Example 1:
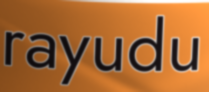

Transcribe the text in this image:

rayudu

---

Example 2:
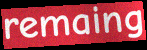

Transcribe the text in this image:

remaing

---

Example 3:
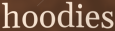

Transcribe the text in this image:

hoodies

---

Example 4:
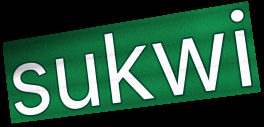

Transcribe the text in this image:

sukwi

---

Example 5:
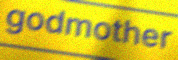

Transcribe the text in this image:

godmother